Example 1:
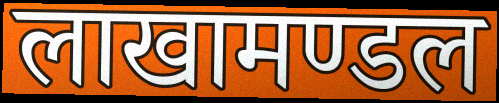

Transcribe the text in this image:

लाखामण्डल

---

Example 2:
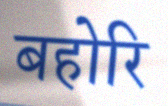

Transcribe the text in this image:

बहोरि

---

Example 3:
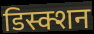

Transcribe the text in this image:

डिस्क्शन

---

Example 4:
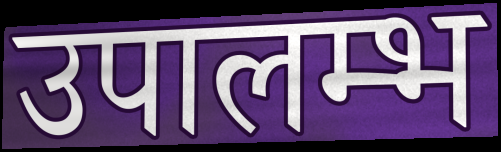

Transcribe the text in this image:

उपालम्भ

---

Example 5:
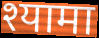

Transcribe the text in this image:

श्यामा